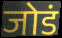
जोडं